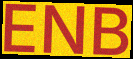
ENB